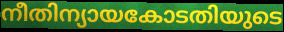
നീതിന്യായകോടതിയുടെ